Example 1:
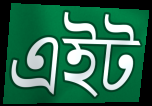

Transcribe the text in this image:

এইট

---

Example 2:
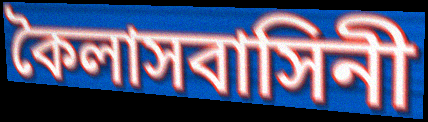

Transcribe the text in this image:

কৈলাসবাসিনী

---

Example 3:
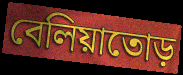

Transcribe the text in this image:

বেলিয়াতোড়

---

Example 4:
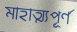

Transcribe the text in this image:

মাহাত্ম্যপূর্ণ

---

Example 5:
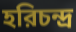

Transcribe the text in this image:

হরিচন্দ্র